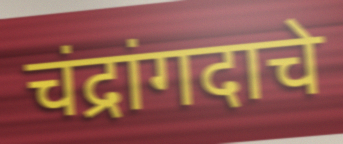
चंद्रांगदाचे